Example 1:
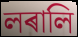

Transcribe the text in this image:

লৰালি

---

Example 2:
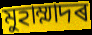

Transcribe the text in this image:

মুহাম্মাদৰ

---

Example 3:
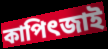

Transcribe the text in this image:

কাপিৎজাই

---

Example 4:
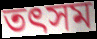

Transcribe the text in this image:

তৎসম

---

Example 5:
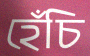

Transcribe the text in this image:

হেঁচি